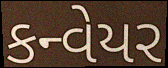
કન્વેયર